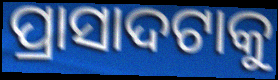
ପ୍ରାସାଦଟାକୁ